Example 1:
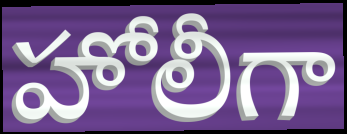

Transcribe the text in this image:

హోలీగా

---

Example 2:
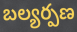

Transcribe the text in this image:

బల్యర్పణ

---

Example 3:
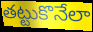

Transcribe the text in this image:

తట్టుకొనేలా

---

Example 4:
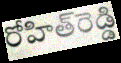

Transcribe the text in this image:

రోహిత్‌రెడ్డి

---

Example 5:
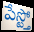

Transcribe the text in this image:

పేస్ట్తో